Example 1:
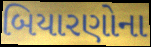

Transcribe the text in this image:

બિયારણોના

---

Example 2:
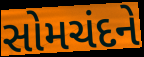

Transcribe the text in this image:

સોમચંદને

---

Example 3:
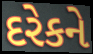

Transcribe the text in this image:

દરેકને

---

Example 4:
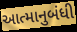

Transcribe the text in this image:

આત્માનુબંધી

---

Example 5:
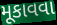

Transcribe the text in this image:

મૂકાવવા